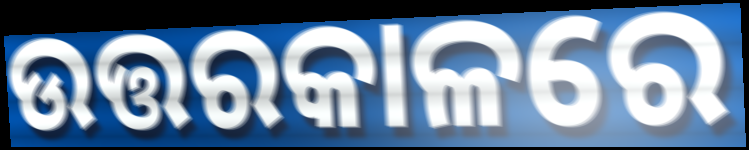
ଉତ୍ତରକାଳରେ